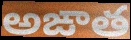
అఙాత